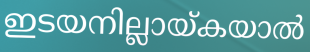
ഇടയനില്ലായ്കയാൽ